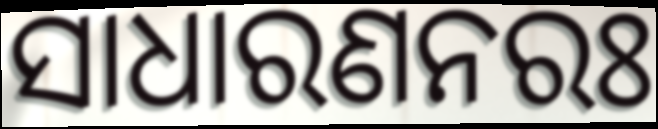
ସାଧାରଣନରଃ